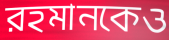
রহমানকেও